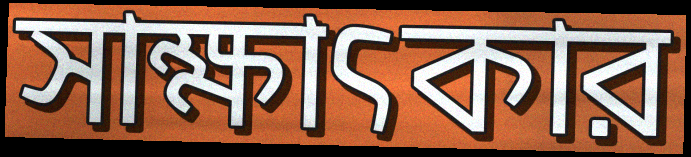
সাক্ষাৎকার